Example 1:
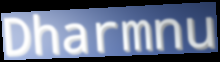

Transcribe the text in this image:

Dharmnu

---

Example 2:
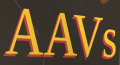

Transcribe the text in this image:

AAVs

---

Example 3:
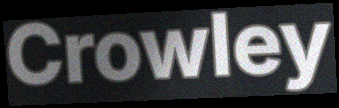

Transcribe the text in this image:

Crowley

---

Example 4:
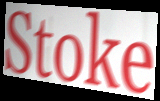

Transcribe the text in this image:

Stoke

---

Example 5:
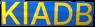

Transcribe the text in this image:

KIADB